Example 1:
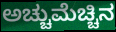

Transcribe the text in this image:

ಅಚ್ಚುಮೆಚ್ಚಿನ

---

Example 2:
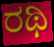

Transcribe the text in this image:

ರಥಿ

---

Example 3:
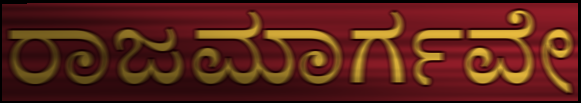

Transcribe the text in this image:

ರಾಜಮಾರ್ಗವೇ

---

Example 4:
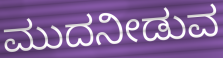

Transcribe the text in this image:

ಮುದನೀಡುವ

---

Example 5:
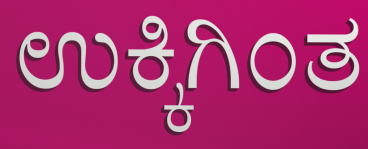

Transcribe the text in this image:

ಉಕ್ಕಿಗಿಂತ